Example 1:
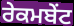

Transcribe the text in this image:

ਰੇਕਮਬੇਂਟ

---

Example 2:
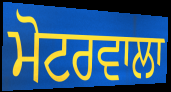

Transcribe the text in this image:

ਮੋਟਰਵਾਲਾ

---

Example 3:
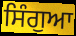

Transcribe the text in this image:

ਸਿੰਗੁਆ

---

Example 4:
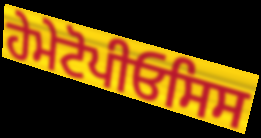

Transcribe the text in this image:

ਹੇਮੇਟੋਪੀਓਸਿਸ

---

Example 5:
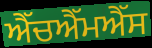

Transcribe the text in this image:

ਐੱਚਐੱਮਐੱਸ